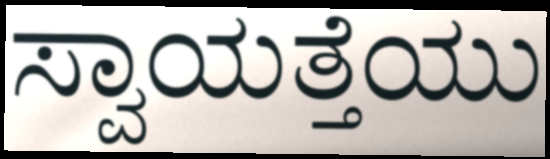
ಸ್ವಾಯತ್ತೆಯು